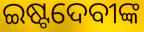
ଇଷ୍ଟଦେବୀଙ୍କ